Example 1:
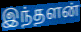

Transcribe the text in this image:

இந்தளன்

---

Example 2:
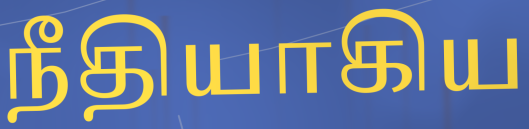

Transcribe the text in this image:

நீதியாகிய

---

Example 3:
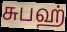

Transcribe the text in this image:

சுபஹ்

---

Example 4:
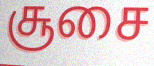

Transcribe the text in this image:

சூசை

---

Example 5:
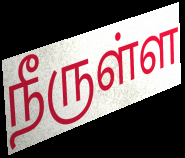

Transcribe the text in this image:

நீருள்ள